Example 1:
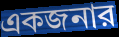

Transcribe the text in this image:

একজনার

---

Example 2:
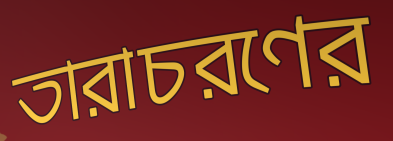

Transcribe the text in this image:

তারাচরণের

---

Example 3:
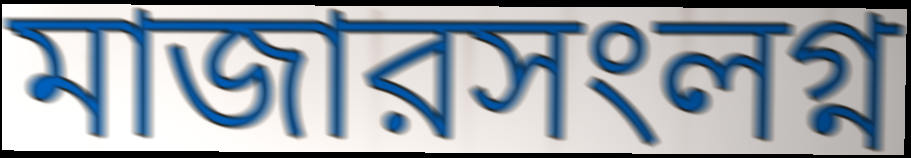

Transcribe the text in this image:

মাজারসংলগ্ন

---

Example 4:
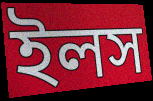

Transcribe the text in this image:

ইলস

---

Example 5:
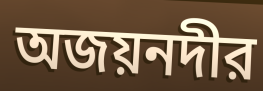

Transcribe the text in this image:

অজয়নদীর